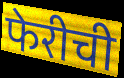
फेरीची